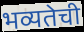
भव्यतेची